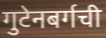
गुटेनबर्गची